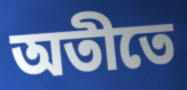
অতীতে